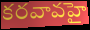
కరవావహై